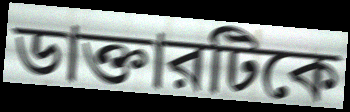
ডাক্তারটিকে